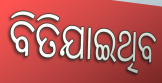
ବିତିଯାଇଥିବ